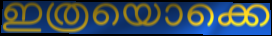
ഇത്രയൊക്കെ